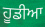
ਹੂਡੀਆ